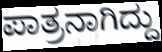
ಪಾತ್ರನಾಗಿದ್ದು